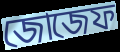
জোজেফ